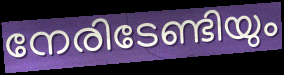
നേരിടേണ്ടിയും